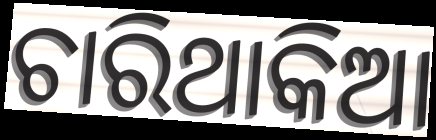
ଚାରିଥାକିଆ